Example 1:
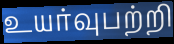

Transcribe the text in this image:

உயர்வுபற்றி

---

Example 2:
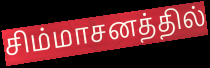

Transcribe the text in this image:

சிம்மாசனத்தில்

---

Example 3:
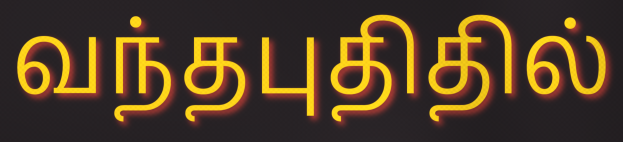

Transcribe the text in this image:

வந்தபுதிதில்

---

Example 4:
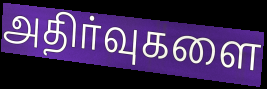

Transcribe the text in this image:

அதிர்வுகளை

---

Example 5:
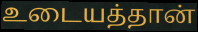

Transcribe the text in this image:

உடையத்தான்